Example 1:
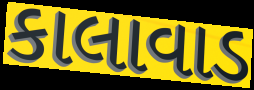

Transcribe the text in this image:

કાલાવાડ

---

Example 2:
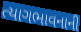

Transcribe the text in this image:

ત્યાગભાવનાની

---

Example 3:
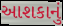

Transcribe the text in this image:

આશકાનું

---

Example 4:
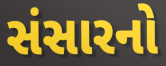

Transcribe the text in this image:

સંસારનો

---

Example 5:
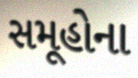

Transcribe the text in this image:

સમૂહોના